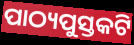
ପାଠ୍ୟପୁସ୍ତକଟି